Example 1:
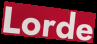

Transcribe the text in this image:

Lorde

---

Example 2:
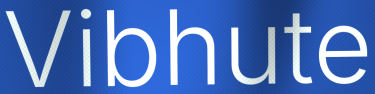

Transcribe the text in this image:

Vibhute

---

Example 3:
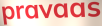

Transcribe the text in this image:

pravaas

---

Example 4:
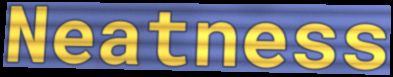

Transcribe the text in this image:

Neatness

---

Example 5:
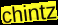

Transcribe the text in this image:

chintz